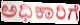
ಅಧಿಕಾರಿಗೆ